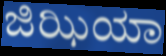
ಜಿಝಿಯಾ